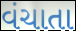
વંચાતા